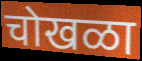
चोखळा